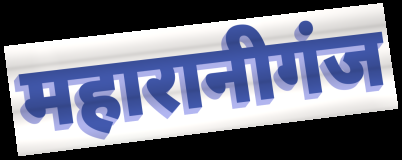
महारानीगंज